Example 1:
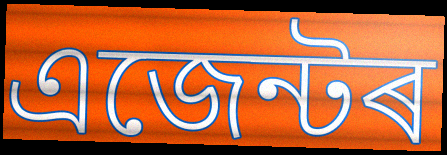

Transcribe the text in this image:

এজেন্টৰ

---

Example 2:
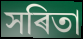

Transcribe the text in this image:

সৰিতা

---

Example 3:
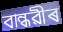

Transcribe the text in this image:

বান্ধৱীৰ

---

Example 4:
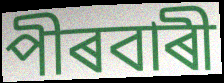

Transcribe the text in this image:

পীৰবাৰী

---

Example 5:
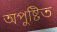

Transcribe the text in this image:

অপুষ্টিত